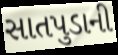
સાતપુડાની